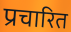
प्रचारित